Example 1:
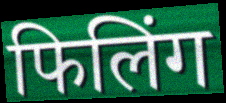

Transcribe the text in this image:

फिलिंग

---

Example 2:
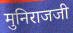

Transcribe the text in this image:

मुनिराजजी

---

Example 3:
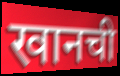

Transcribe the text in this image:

खानची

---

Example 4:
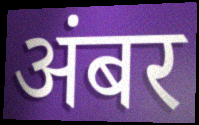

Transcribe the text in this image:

अंबर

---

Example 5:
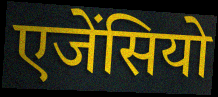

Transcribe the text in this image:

एजेंसियो